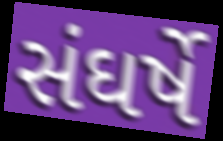
સંઘર્ષે